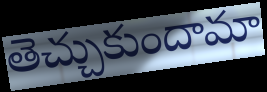
తెచ్చుకుందామా